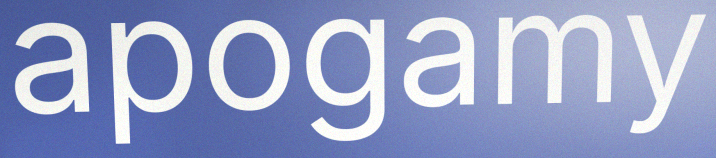
apogamy